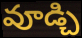
వూడ్చి